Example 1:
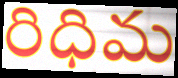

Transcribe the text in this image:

రిధిమ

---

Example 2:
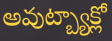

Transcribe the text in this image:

అవుట్బ్యాక్లో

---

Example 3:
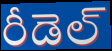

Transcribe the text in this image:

రీడెల్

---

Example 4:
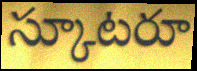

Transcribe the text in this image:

స్కూటరూ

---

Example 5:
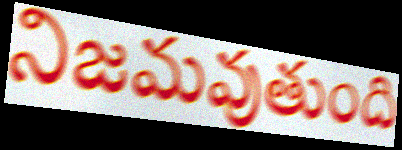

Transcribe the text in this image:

నిజమవుతుంది